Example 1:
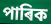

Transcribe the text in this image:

পাৰিক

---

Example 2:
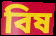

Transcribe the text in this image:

বিষ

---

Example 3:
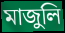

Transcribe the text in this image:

মাজুলি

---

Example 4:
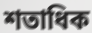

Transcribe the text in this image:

শতাধিক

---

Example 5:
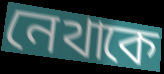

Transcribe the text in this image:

নেথাকে